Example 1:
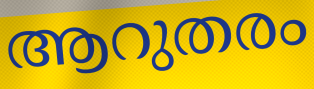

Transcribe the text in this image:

ആറുതരം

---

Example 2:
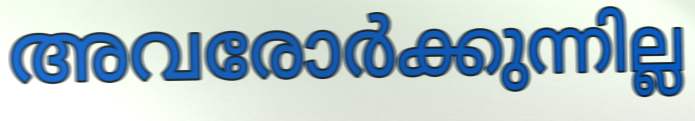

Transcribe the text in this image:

അവരോർക്കുന്നില്ല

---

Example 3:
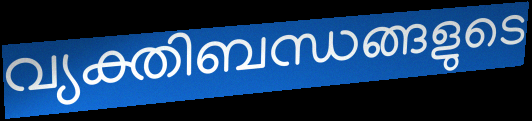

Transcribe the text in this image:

വ്യക്തിബന്ധങ്ങളുടെ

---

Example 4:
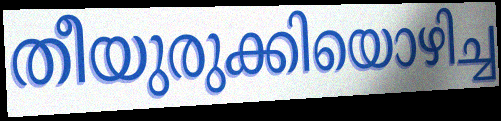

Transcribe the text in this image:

തീയുരുക്കിയൊഴിച്ച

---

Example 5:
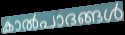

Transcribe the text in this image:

കാൽപാദങ്ങൾ